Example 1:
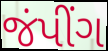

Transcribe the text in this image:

જંપીંગ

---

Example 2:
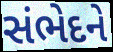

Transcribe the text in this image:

સંભેદને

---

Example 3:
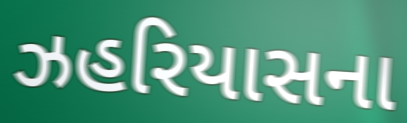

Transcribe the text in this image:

ઝહરિયાસના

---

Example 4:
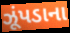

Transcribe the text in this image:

ઝૂંપડાના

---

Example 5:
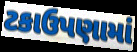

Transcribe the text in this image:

ટકાઉપણામાં